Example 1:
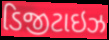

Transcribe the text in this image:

ડિજીટાઇઝ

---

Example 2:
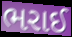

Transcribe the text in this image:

ભરાઈ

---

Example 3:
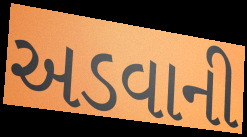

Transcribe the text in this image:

અડવાની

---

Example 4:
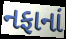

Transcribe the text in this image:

નફાનાં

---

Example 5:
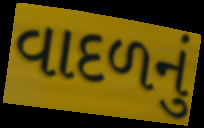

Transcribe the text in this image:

વાદળનું